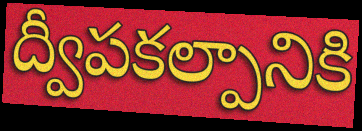
ద్వీపకల్పానికి